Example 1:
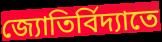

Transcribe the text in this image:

জ্যোতির্বিদ্যাতে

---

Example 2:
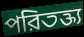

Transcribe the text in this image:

পরিতক্ত্য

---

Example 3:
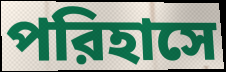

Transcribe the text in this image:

পরিহাসে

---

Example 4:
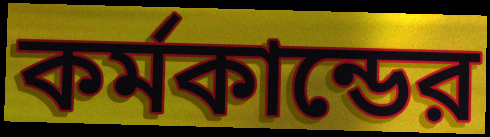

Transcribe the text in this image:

কর্মকান্ডের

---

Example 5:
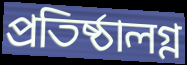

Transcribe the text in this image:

প্রতিষ্ঠালগ্ন